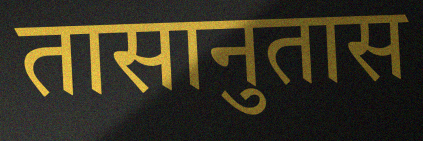
तासानुतास